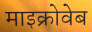
माइक्रोवेब